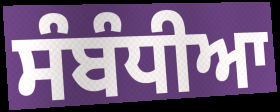
ਸੰਬੰਧੀਆ